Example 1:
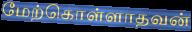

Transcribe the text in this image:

மேற்கொள்ளாதவன்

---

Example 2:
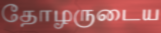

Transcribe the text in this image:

தோழருடைய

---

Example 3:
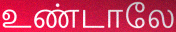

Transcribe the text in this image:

உண்டாலே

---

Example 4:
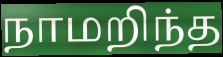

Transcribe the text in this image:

நாமறிந்த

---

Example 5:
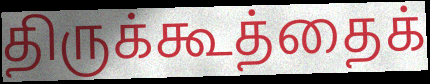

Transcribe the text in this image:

திருக்கூத்தைக்